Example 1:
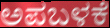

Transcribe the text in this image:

ಅಪಬಳಕೆ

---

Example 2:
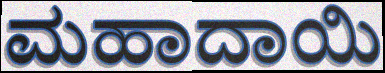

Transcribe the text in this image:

ಮಹಾದಾಯಿ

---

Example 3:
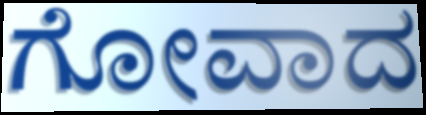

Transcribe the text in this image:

ಗೋವಾದ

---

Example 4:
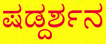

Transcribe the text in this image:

ಷಡ್ದರ್ಶನ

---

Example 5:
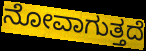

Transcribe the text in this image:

ನೋವಾಗುತ್ತದೆ